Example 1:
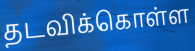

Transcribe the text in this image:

தடவிக்கொள்ள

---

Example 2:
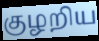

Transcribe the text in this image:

குழறிய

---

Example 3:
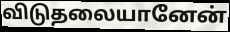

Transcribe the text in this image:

விடுதலையானேன்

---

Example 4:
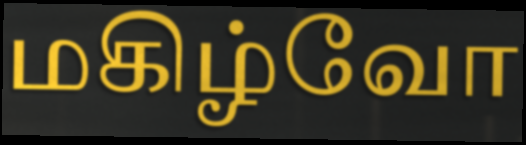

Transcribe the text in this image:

மகிழ்வோ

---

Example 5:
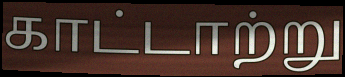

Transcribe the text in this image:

காட்டாற்று